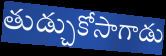
తుడ్చుకోసాగాడు